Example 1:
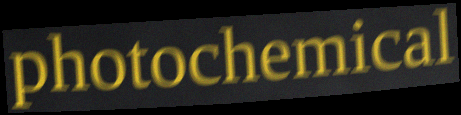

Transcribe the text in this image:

photochemical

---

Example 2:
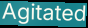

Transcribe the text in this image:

Agitated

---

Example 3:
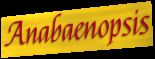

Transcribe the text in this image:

Anabaenopsis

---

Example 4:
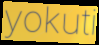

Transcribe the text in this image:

yokuti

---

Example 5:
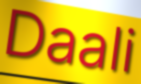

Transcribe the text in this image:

Daali